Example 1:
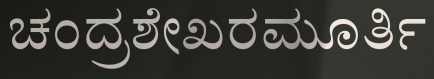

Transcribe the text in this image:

ಚಂದ್ರಶೇಖರಮೂರ್ತಿ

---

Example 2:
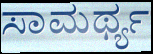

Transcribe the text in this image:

ಸಾಮರ್ಥ್ಯ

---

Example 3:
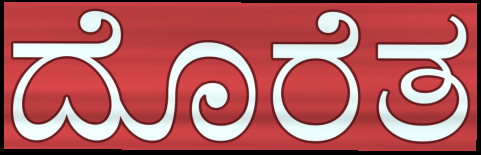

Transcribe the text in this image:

ದೊರೆತ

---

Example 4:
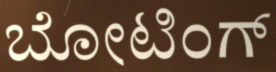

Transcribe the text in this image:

ಬೋಟಿಂಗ್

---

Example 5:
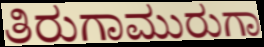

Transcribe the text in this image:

ತಿರುಗಾಮುರುಗಾ